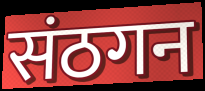
संठगन